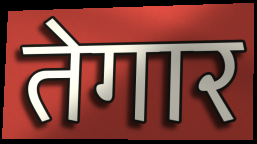
तेगार